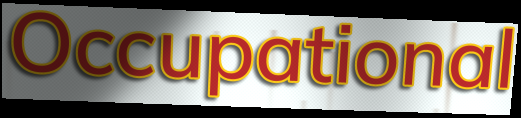
Occupational